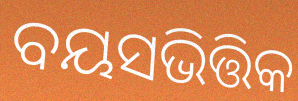
ବୟସଭିତ୍ତିକ